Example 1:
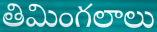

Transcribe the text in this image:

తిమింగలాలు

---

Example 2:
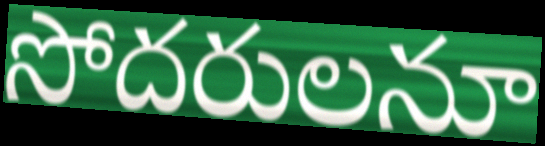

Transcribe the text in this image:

సోదరులనూ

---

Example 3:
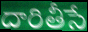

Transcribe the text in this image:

దారితీసే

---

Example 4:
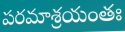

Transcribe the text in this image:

పరమాశ్రయంతః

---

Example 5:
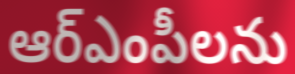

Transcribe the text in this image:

ఆర్ఎంపీలను